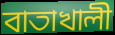
বাতাখালী